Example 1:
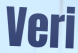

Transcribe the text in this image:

Veri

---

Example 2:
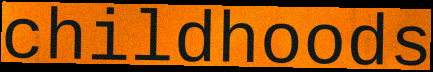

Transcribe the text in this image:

childhoods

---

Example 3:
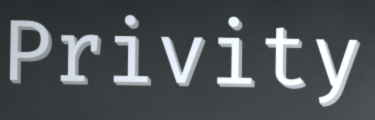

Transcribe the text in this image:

Privity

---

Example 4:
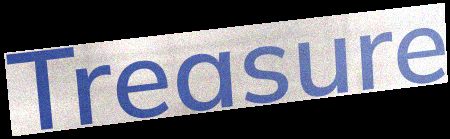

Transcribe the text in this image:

Treasure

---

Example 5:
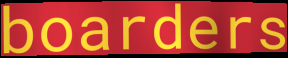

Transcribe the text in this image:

boarders